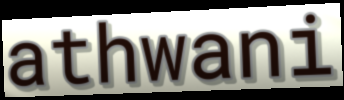
athwani